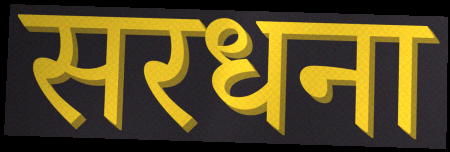
सरधना